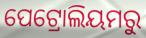
ପେଟ୍ରୋଲିୟମରୁ